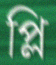
প্লি